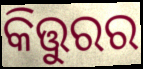
କିତ୍ତୁରର